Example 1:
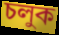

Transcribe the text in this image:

চলুক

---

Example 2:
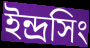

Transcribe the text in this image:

ইন্দ্রসিং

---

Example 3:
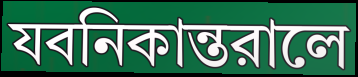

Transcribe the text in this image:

যবনিকান্তরালে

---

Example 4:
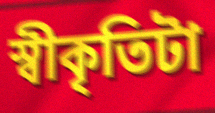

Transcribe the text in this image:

স্বীকৃতিটা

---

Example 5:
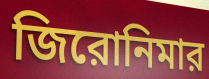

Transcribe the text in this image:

জিরোনিমার